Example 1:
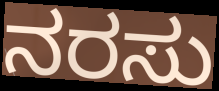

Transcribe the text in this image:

ನರಸು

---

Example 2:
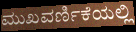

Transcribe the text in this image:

ಮುಖವರ್ಣಿಕೆಯಲ್ಲಿ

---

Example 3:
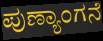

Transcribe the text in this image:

ಪುಣ್ಯಾಂಗನೆ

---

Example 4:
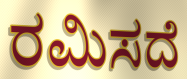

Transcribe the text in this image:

ರಮಿಸದೆ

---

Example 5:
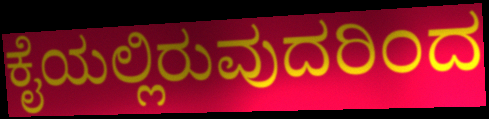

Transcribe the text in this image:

ಕೈಯಲ್ಲಿರುವುದರಿಂದ